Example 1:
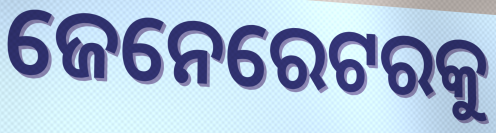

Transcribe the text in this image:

ଜେନେରେଟରକୁ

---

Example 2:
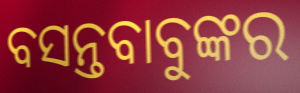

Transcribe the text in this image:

ବସନ୍ତବାବୁଙ୍କର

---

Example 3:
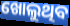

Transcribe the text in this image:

ଖୋଲୁଥିବ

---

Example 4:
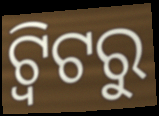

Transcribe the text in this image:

ଟ୍ବିଟରୁ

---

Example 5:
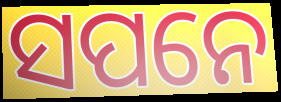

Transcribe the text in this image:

ସପନେ